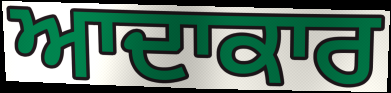
ਆਦਾਕਾਰ